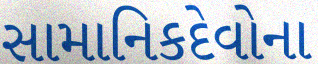
સામાનિકદેવોના